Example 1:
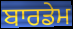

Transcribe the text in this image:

ਬਾਰਡੇਮ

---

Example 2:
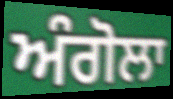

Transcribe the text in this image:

ਅੰਗੋਲਾ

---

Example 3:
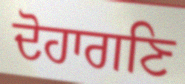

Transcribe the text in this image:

ਦੋਹਾਗਣਿ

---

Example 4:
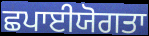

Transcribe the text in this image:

ਛਪਾਈਯੋਗਤਾ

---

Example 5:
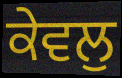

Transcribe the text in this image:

ਕੇਵਲੁ